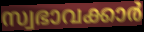
സ്വഭാവക്കാർ